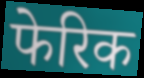
फेरिक